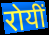
रोयीं